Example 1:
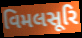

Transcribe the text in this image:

વિમલસૂરિ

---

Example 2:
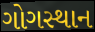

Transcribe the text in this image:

ગોગસ્થાન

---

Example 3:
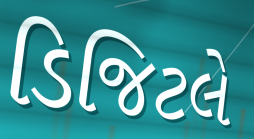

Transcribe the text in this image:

ડિજિટલે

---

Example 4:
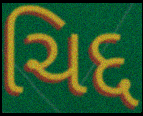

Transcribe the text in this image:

ચિદ્દ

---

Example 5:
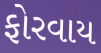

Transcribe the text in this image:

ફોરવાય